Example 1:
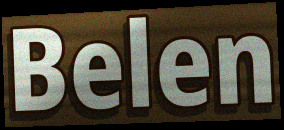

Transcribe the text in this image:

Belen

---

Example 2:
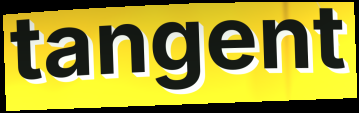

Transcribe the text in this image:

tangent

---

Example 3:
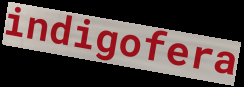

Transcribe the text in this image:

indigofera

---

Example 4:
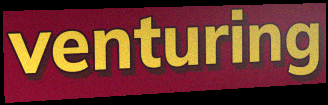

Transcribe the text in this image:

venturing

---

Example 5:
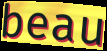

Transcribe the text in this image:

beau